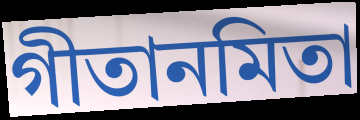
গীতানমিতা